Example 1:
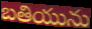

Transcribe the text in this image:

బతియును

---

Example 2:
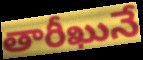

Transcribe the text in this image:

తారీఖునే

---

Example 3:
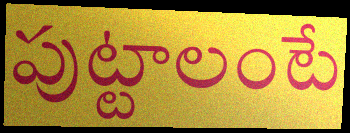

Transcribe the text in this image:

పుట్టాలంటే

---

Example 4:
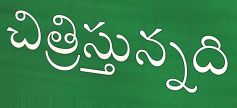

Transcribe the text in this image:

చిత్రిస్తున్నది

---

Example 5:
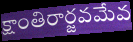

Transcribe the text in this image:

క్షాంతిరార్జవమేవ